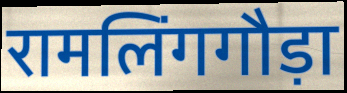
रामलिंगगौड़ा